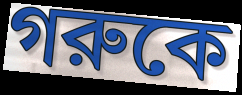
গরুকে